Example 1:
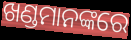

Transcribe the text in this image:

ଖଣ୍ଡମାନଙ୍କରେ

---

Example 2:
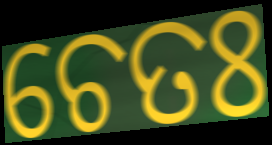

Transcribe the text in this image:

ଚେତଃ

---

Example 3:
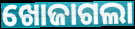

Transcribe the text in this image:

ଖୋଜାଗଲା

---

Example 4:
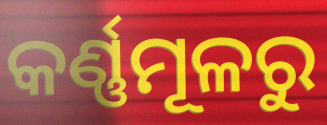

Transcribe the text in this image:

କର୍ଣ୍ଣମୂଳରୁ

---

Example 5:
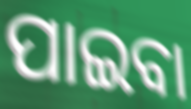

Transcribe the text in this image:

ପାଇବା